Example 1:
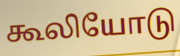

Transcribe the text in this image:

கூலியோடு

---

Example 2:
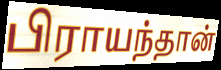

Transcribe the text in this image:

பிராயந்தான்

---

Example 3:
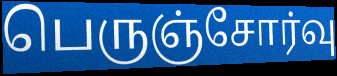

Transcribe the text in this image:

பெருஞ்சோர்வு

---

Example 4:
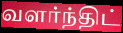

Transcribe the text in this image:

வளர்ந்திட்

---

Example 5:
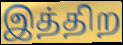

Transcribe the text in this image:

இத்திற